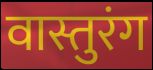
वास्तुरंग